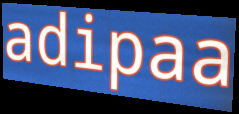
adipaa